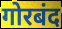
गोरबंद